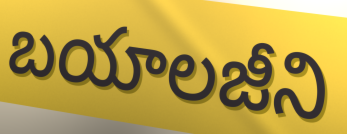
బయాలజీని